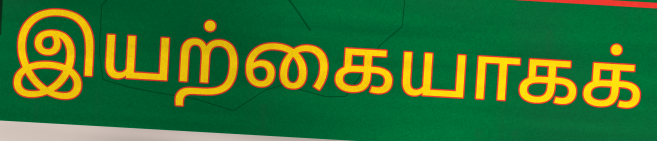
இயற்கையாகக்